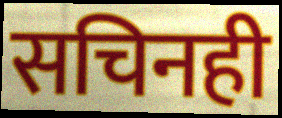
सचिनही